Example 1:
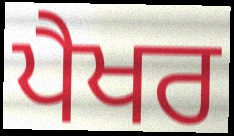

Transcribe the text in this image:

ਪੈਖਰ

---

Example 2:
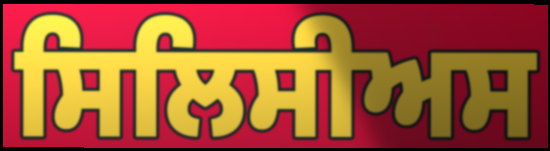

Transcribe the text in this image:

ਸਿਲਿਸੀਅਸ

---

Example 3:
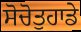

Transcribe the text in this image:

ਸੋਚੋਤੁਹਾਡੇ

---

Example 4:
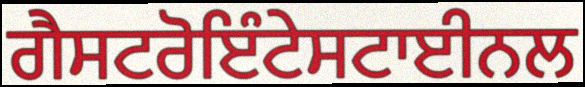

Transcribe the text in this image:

ਗੈਸਟਰੋਇੰਟੇਸਟਾਈਨਲ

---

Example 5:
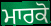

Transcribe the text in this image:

ਮਾਰਕੋ